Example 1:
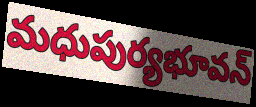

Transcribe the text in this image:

మధుపుర్యభూవన్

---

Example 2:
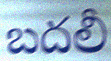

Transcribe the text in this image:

బదలీ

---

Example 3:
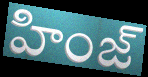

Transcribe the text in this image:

హింజ్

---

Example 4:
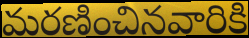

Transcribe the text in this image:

మరణించినవారికి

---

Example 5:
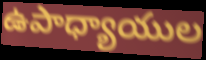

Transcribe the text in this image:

ఉపాధ్యాయుల